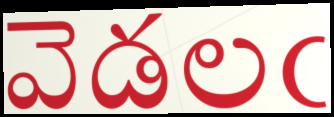
వెడలఁ